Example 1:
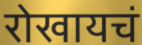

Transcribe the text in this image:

रोखायचं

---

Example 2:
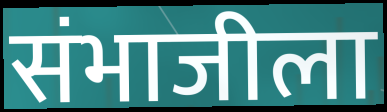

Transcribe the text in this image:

संभाजीला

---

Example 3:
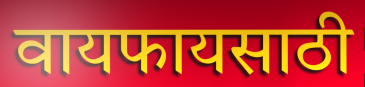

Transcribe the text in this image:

वायफायसाठी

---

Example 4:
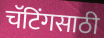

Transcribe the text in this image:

चॅटिंगसाठी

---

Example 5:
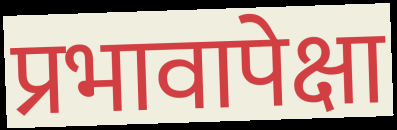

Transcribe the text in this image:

प्रभावापेक्षा